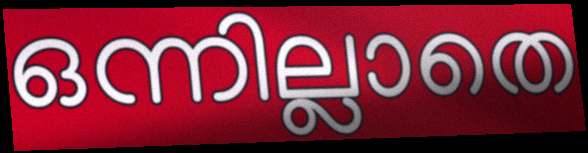
ഒന്നില്ലാതെ